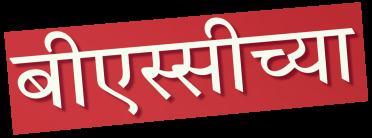
बीएस्सीच्या